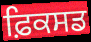
ਫ਼ਿਕਸਡ